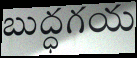
బుద్ధగయ